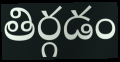
తిర్గడం